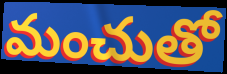
మంచుతో